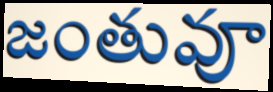
జంతువూ